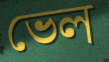
ভেল